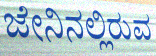
ಜೇನಿನಲ್ಲಿರುವ